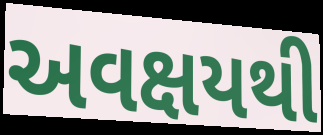
અવક્ષયથી